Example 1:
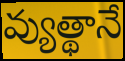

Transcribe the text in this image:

వ్యుత్థానే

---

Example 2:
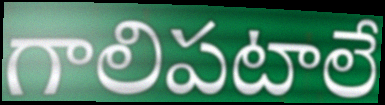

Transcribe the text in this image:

గాలిపటాలే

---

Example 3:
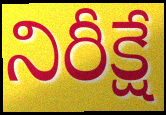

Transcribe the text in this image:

నిరీక్షే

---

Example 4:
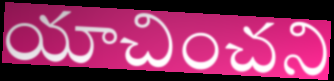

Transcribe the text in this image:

యాచించని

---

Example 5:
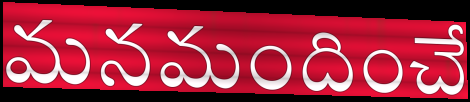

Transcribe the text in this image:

మనమందించే